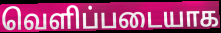
வெளிப்படையாக